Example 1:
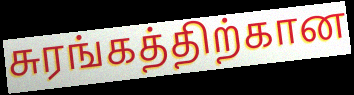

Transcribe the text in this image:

சுரங்கத்திற்கான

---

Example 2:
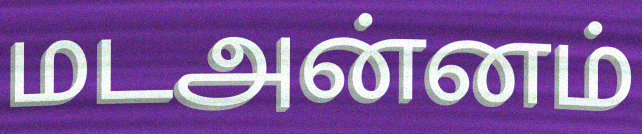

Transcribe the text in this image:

மடஅன்னம்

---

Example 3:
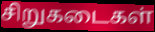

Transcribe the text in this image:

சிறுகடைகள்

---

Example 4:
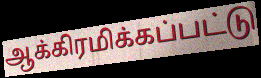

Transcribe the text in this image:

ஆக்கிரமிக்கப்பட்டு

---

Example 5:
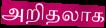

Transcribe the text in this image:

அறிதலாக